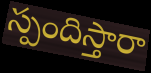
స్పందిస్తారా